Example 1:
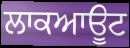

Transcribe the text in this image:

ਲਾਕਆਊਟ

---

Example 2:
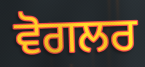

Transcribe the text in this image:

ਵੋਗਲਰ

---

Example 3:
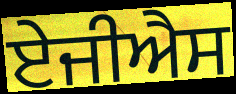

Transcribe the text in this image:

ਏਜੀਐਸ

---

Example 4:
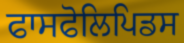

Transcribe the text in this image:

ਫਾਸਫੋਲਿਪਿਡਸ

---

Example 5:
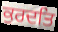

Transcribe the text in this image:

ਕੁਰਦਤਿ